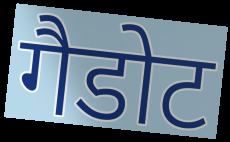
गैडोट